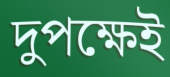
দুপক্ষেই